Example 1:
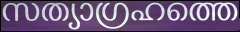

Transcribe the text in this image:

സത്യാഗ്രഹത്തെ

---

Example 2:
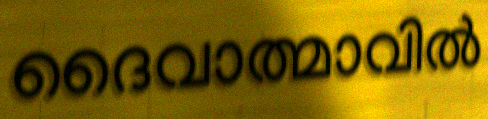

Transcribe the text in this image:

ദൈവാത്മാവിൽ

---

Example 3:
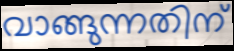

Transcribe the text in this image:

വാങ്ങുന്നതിന്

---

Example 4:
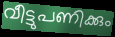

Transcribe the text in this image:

വീട്ടുപണിക്കും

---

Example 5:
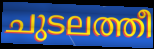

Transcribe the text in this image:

ചുടലത്തീ